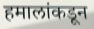
हमालांकडून